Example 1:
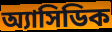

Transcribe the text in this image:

অ্যাসিডিক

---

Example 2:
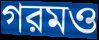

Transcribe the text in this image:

গরমও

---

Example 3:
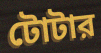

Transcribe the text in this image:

টোটার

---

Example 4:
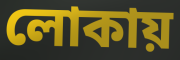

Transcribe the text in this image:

লোকায়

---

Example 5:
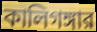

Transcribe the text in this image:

কালিগঙ্গার